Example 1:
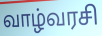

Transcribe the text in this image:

வாழ்வரசி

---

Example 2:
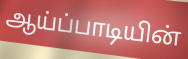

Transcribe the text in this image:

ஆய்ப்பாடியின்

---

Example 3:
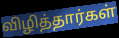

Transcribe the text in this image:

விழித்தார்கள்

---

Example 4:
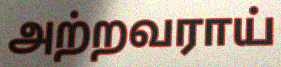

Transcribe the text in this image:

அற்றவராய்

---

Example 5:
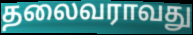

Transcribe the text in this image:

தலைவராவது